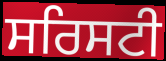
ਸਰਿਸਟੀ